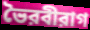
ভৈরবীরাগ